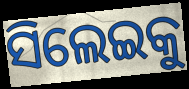
ସିଲେଇକୁ